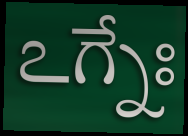
ఽగ్నేః